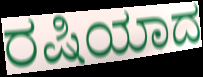
ರಷಿಯಾದ